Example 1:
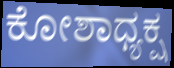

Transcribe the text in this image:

ಕೋಶಾಧ್ಯಕ್ಷ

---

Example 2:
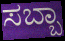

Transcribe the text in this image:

ಸಬ್ಬಾ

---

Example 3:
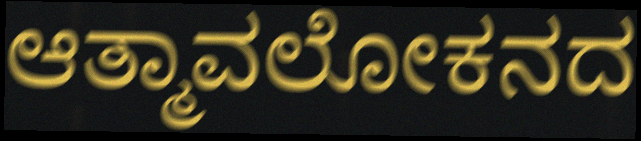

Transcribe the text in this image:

ಆತ್ಮಾವಲೋಕನದ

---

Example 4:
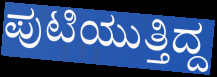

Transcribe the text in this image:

ಪುಟಿಯುತ್ತಿದ್ದ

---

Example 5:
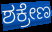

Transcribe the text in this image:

ಶಕ್ರೇಣ